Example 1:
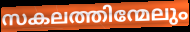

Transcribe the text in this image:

സകലത്തിന്മേലും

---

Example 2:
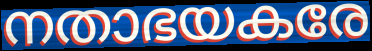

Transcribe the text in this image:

നതാഭയകരേ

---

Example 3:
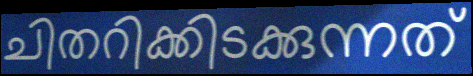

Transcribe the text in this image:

ചിതറിക്കിടക്കുന്നത്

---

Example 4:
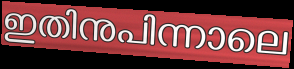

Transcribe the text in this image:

ഇതിനുപിന്നാലെ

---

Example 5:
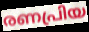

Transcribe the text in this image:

രണപ്രിയ